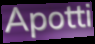
Apotti